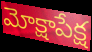
మోక్షాపేక్ష